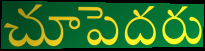
చూపెదరు